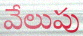
వేలుపు